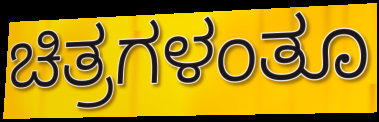
ಚಿತ್ರಗಳಂತೂ